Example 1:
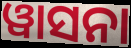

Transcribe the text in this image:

ୱାସନା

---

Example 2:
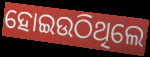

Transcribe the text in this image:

ହୋଇଉଠିଥିଲେ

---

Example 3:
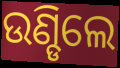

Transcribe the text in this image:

ଉଣ୍ଡିଲେ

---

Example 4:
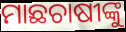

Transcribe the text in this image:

ମାଛଚାଷୀଙ୍କୁ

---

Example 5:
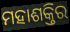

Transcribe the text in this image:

ମହାଶକ୍ତିର